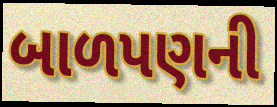
બાળપણની